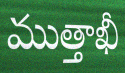
ముత్తాఖీ